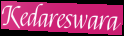
Kedareswara